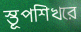
স্তূপশিখরে